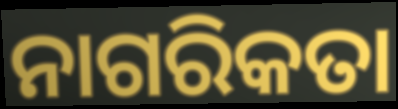
ନାଗରିକତା